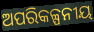
ଅପରିକଳ୍ପନୀୟ